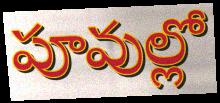
పూవుల్లో